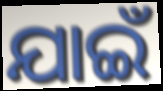
ଯାଇଁ